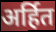
अर्हित